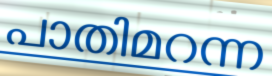
പാതിമറന്ന